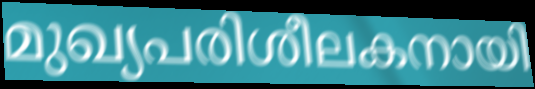
മുഖ്യപരിശീലകനായി